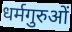
धर्मगुरुओं